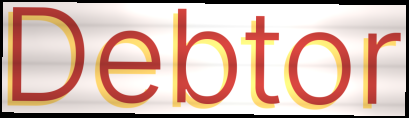
Debtor